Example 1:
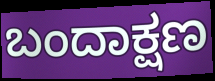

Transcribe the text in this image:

ಬಂದಾಕ್ಷಣ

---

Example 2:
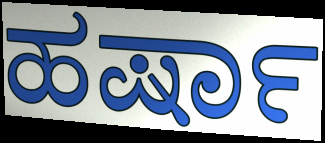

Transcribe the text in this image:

ಹರ್ಷಾ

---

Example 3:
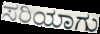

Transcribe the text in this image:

ಸರಿಯಾಗು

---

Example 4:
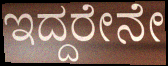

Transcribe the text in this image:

ಇದ್ದರೇನೇ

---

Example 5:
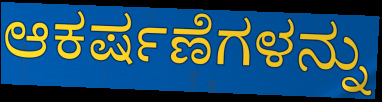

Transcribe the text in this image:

ಆಕರ್ಷಣೆಗಳನ್ನು